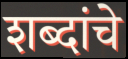
शब्दांचे